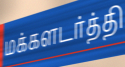
மக்களடர்த்தி